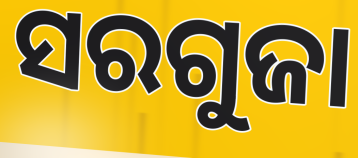
ସରଗୁଜା